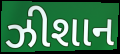
ઝીશાન